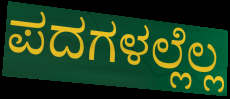
ಪದಗಳಲ್ಲೆಲ್ಲ